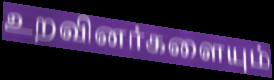
உறவினர்களையும்